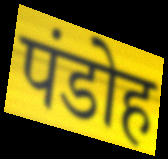
पंडोह